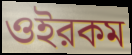
ওইরকম